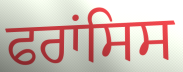
ਫਰਾਂਸਿਸ